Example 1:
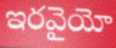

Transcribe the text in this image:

ఇరవైయో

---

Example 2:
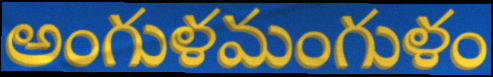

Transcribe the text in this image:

అంగుళమంగుళం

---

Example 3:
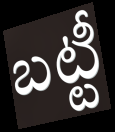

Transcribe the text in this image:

బట్టీ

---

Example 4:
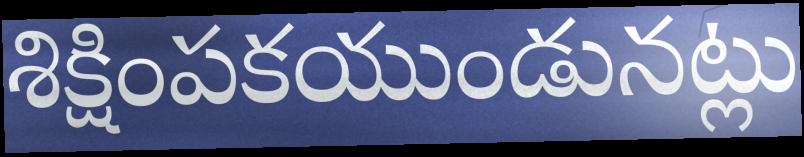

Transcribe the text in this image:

శిక్షింపకయుండునట్లు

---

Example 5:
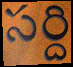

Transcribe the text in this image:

సర్ది